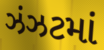
ઝંઝટમાં